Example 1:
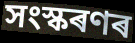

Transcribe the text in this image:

সংস্কৰণৰ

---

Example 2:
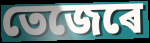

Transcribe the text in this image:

তেজেৰে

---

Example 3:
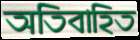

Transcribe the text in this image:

অতিবাহিত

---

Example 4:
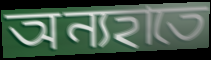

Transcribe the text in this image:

অন্যহাতে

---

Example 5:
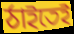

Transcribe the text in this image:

ঠাইতেই